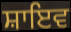
ਸ਼ਾਇਵ